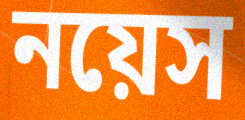
নয়েস